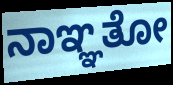
ನಾಞ್ಞತೋ